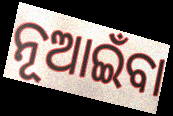
ନୂଆଇଁବା